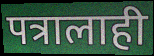
पत्रालाही